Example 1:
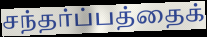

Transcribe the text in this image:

சந்தர்ப்பத்தைக்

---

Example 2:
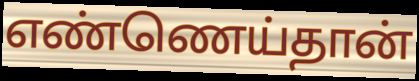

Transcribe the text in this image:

எண்ணெய்தான்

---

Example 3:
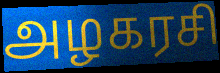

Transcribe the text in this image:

அழகரசி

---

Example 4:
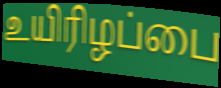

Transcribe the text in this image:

உயிரிழப்பை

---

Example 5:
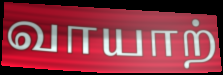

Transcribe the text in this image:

வாயாற்